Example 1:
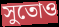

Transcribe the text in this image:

সুতোও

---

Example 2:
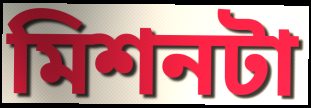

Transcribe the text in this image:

মিশনটা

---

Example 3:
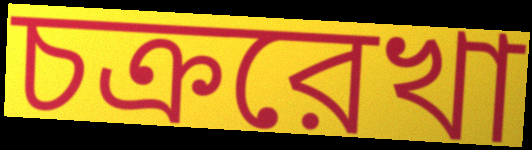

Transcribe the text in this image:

চক্ররেখা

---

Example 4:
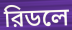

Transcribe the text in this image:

রিডলে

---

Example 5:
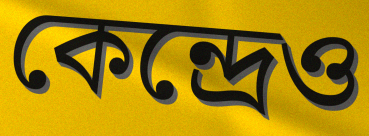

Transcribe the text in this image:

কেন্দ্রেও